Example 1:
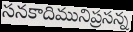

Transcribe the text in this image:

సనకాదిమునిప్రసన్న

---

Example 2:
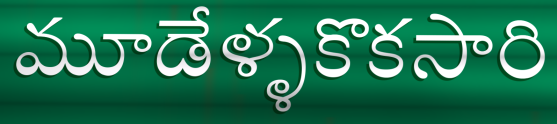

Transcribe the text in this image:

మూడేళ్ళకొకసారి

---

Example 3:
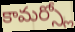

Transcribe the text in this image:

కామర్స్లో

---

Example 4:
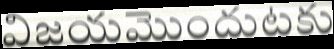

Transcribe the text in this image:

విజయమొందుటకు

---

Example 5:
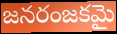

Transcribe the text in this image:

జనరంజకమై